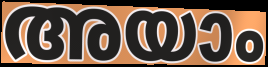
അയാം